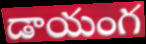
డాయంగ